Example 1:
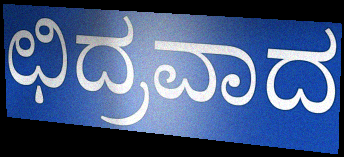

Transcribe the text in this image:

ಛಿದ್ರವಾದ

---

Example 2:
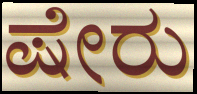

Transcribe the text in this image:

ಷೇರು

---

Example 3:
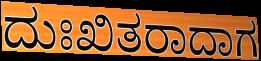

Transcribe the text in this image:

ದುಃಖಿತರಾದಾಗ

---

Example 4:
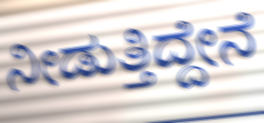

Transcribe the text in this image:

ನೀಡುತ್ತಿದ್ದೇನೆ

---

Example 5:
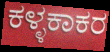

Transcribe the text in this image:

ಕಳ್ಳಕಾಕರ